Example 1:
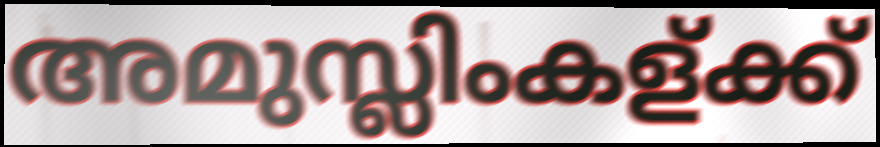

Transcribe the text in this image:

അമുസ്ലിംകള്ക്ക്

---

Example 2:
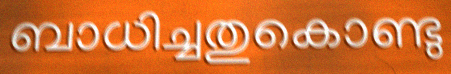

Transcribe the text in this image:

ബാധിച്ചതുകൊണ്ടു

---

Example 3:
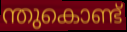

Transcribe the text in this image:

ന്തുകൊണ്ട്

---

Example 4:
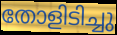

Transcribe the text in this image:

തോളിടിച്ചു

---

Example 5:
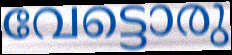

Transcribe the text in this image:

വേട്ടൊരു